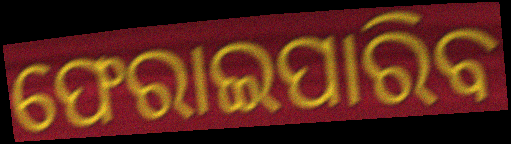
ଫେରାଇପାରିବ